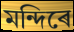
মন্দিৰে